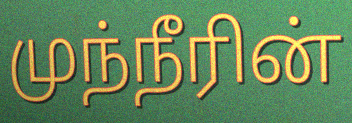
முந்நீரின்